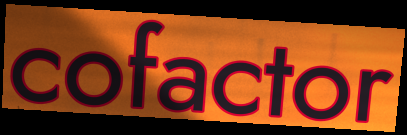
cofactor